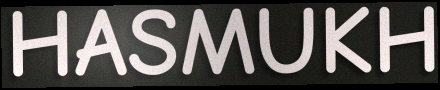
HASMUKH